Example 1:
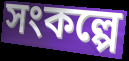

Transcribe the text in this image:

সংকল্পে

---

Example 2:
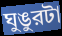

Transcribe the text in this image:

ঘুঙুরটা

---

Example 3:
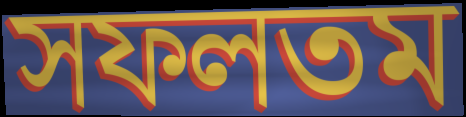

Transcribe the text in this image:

সফলতম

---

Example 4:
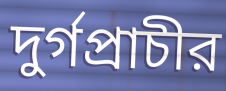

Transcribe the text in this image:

দুর্গপ্রাচীর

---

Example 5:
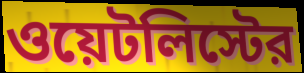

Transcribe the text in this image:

ওয়েটলিস্টের